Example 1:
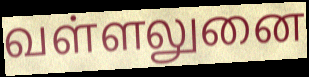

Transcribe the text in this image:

வள்ளலுனை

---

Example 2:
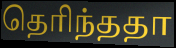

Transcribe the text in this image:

தெரிந்ததா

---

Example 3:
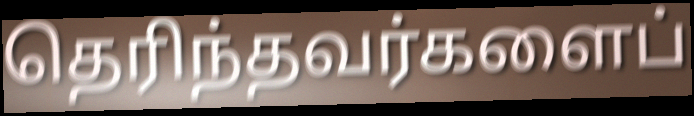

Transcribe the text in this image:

தெரிந்தவர்களைப்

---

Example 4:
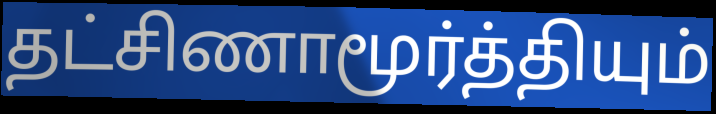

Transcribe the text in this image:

தட்சிணாமூர்த்தியும்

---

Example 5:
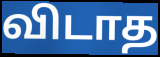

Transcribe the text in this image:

விடாத